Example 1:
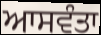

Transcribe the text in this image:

ਆਸਵੰਤਾ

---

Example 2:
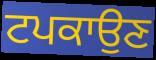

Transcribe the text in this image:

ਟਪਕਾਉਣ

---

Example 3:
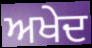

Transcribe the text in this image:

ਅਖੇਦ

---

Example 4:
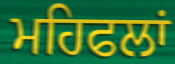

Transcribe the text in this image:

ਮਹਿਫਲਾਂ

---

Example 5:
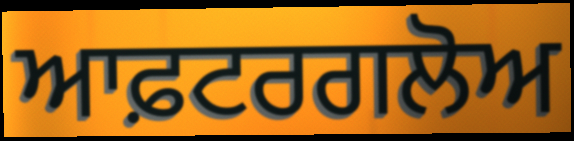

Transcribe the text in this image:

ਆਫ਼ਟਰਗਲੋਅ